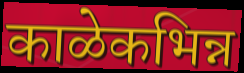
काळेकभिन्न